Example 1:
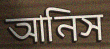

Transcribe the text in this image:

আনিস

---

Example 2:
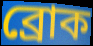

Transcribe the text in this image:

ব্রোক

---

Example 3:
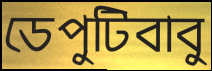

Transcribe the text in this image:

ডেপুটিবাবু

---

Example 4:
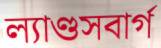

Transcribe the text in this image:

ল্যাণ্ডসবার্গ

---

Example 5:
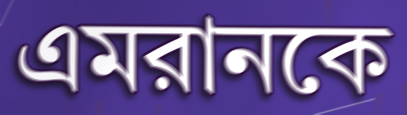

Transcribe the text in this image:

এমরানকে